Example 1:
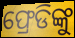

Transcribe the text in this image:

ଫ୍ରେଡିଙ୍କୁ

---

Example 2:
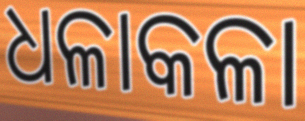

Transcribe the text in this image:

ଧଳାକଳା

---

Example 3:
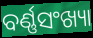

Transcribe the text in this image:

ବର୍ଣ୍ଣସଂଖ୍ୟା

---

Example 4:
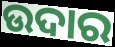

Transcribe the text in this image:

ଉଦାର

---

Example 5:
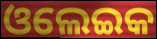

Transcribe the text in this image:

ଓଲେଇକ